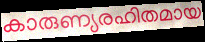
കാരുണ്യരഹിതമായ